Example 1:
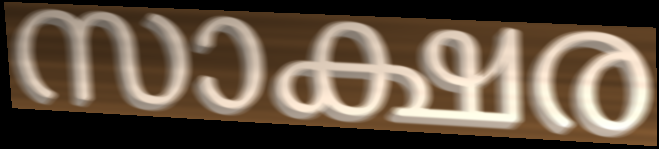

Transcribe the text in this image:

സാക്ഷര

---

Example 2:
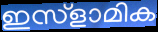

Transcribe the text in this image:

ഇസ്ളാമിക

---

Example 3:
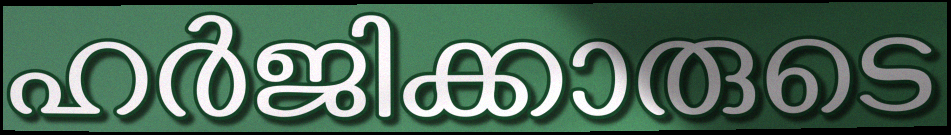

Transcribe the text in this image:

ഹർജിക്കാരുടെ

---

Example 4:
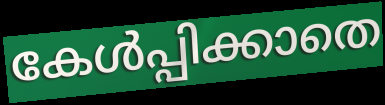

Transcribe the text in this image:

കേൾപ്പിക്കാതെ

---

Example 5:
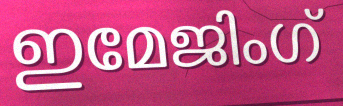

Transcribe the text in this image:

ഇമേജിംഗ്